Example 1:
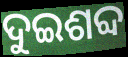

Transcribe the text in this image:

ଦୁଇଶବ୍ଦ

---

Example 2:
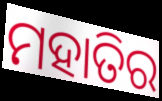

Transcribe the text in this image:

ମହାତିର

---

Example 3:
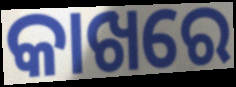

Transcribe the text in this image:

କାଖରେ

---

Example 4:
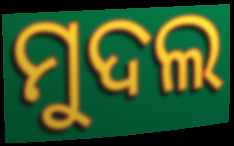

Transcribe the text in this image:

ମୁଦଲ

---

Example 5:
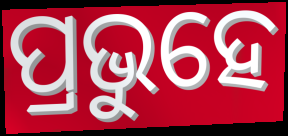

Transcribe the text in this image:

ପ୍ରଭୁହେ